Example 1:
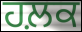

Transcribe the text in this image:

ਹਲ਼ਕ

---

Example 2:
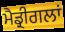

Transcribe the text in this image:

ਮੈਡ੍ਰੀਗਲਾਂ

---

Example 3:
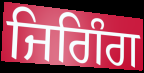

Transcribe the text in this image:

ਜਿਗਿੰਗ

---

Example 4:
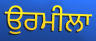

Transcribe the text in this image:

ਉਰਮੀਲਾ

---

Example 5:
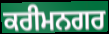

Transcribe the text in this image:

ਕਰੀਮਨਗਰ